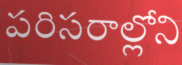
పరిసరాల్లోని